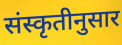
संस्कृतीनुसार